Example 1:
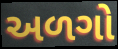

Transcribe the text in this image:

અળગો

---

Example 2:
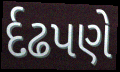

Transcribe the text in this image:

ર્દઢપણે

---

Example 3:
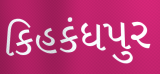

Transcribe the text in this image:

કિહકંધપુર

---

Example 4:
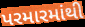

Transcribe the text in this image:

પરમારમાંથી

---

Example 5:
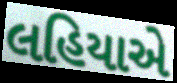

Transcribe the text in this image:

લહિયાએ